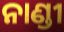
ନାଣ୍ଡୀ